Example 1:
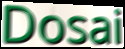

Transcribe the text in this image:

Dosai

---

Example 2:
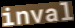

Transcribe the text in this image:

inval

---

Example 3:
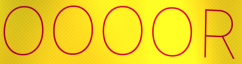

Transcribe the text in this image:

OOOOR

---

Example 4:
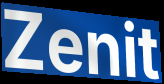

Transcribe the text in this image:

Zenit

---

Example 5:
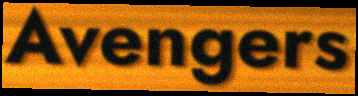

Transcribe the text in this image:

Avengers